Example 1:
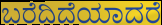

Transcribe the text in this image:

ಬರೆದಿದೆಯಾದರೆ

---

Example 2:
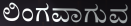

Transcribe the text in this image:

ಲಿಂಗವಾಗುವ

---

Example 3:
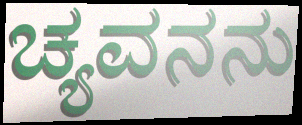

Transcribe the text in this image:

ಚ್ಯವನನು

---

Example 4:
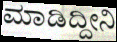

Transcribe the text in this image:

ಮಾಡಿದ್ದೀನಿ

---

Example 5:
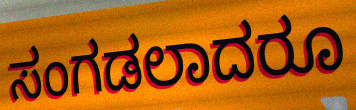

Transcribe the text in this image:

ಸಂಗಡಲಾದರೂ